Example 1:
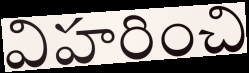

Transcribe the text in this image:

విహరించి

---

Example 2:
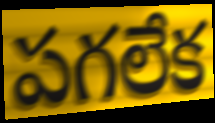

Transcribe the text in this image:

పగలేక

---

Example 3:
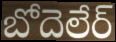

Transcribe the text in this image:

బోదెలేర్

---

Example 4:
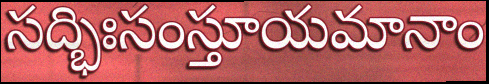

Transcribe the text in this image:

సద్భిఃసంస్తూయమానాం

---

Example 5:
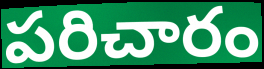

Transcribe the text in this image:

పరిచారం